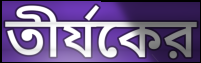
তীর্যকের